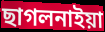
ছাগলনাইয়া